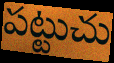
పట్టుచు